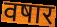
वषार